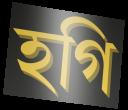
হগি